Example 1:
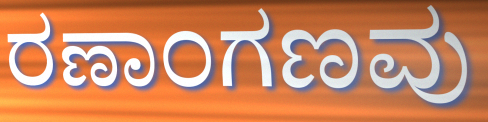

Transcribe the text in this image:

ರಣಾಂಗಣವು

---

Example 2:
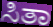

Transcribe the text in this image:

ಸಿತಾ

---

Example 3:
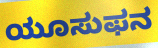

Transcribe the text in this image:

ಯೂಸುಫನ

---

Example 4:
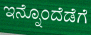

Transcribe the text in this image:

ಇನ್ನೊಂದೆಡೆಗೆ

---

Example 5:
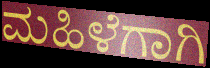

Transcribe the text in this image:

ಮಹಿಳೆಗಾಗಿ